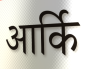
आर्कि